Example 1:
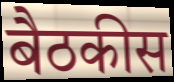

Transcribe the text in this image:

बैठकीस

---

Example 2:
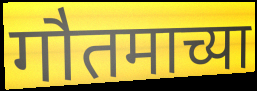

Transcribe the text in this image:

गौतमाच्या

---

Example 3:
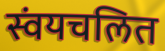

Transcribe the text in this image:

स्वंयचलित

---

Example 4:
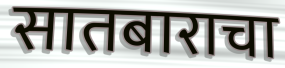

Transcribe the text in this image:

सातबाराचा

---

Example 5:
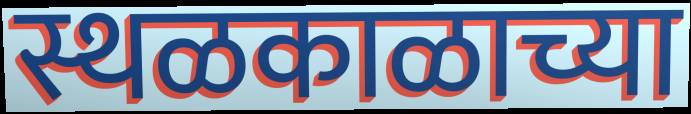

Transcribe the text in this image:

स्थळकाळाच्या